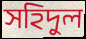
সহিদুল